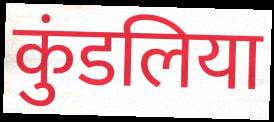
कुंडलिया